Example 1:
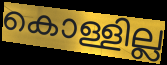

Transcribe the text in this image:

കൊള്ളില്ല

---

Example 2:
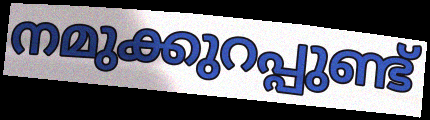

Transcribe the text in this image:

നമുക്കുറപ്പുണ്ട്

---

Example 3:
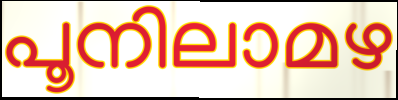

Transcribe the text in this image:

പൂനിലാമഴ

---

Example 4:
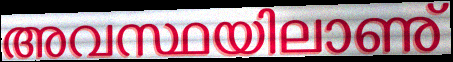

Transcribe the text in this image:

അവസ്ഥയിലാണു്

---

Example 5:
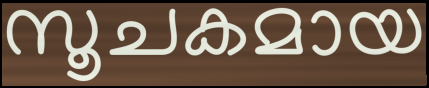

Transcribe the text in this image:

സൂചകമായ